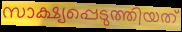
സാക്ഷ്യപ്പെടുത്തിയത്